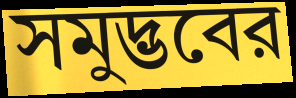
সমুদ্ভবের